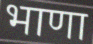
भाणा